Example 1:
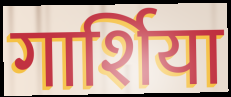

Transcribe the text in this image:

गार्शिया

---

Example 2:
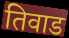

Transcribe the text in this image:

तिवाड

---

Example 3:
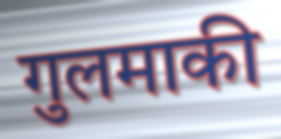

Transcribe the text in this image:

गुलमाकी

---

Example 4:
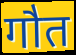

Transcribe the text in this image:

गौत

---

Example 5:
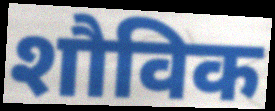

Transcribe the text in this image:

शौविक